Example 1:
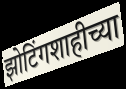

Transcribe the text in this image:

झोटिंगशाहीच्या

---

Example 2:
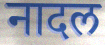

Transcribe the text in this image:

नादल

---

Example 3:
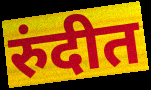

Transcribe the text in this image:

रुंदीत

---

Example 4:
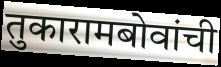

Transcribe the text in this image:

तुकारामबोवांची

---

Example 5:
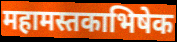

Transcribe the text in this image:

महामस्तकाभिषेक